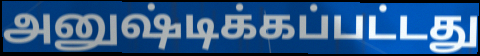
அனுஷ்டிக்கப்பட்டது